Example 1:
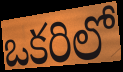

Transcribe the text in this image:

ఒకరిలో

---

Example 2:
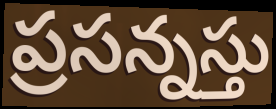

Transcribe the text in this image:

ప్రసన్నస్తు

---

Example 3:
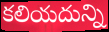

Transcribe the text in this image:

కలియదున్ని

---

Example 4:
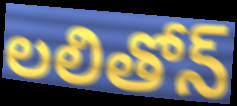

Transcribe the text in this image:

లలితోన్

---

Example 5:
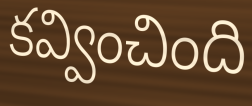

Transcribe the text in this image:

కవ్వించింది